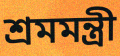
শ্রমমন্ত্রী